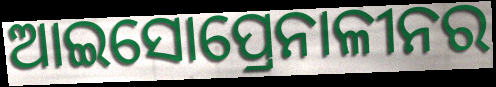
ଆଇସୋପ୍ରେନାଳୀନର